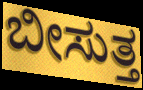
ಬೀಸುತ್ತ